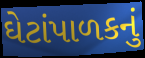
ઘેટાંપાળકનું